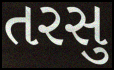
તરસુ